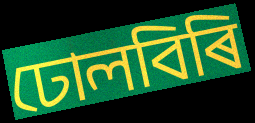
ঢোলবিৰি